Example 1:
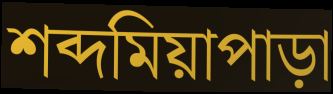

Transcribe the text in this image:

শব্দমিয়াপাড়া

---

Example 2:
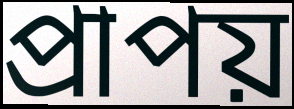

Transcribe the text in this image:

প্রাপয়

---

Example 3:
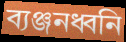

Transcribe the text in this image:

ব্যঞ্জনধ্বনি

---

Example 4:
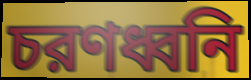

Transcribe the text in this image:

চরণধ্বনি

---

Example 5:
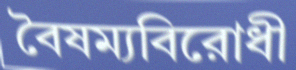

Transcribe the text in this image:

বৈষম্যবিরোধী